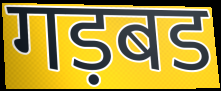
गड़बड